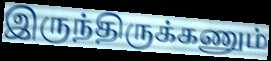
இருந்திருக்கணும்